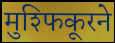
मुश्फिकूरने